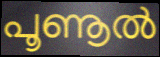
പൂണൂൽ